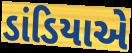
ડાંડિયાએ